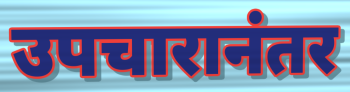
उपचारानंतर